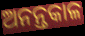
ଅନନ୍ତକାଳ